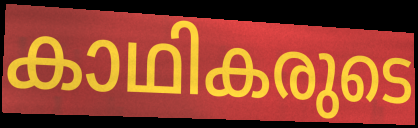
കാഥികരുടെ